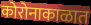
कोरोनाकाळात